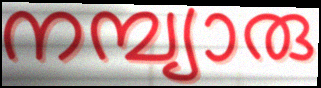
നമ്പ്യാരു